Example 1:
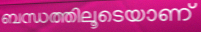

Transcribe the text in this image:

ബന്ധത്തിലൂടെയാണ്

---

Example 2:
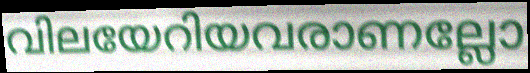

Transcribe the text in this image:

വിലയേറിയവരാണല്ലോ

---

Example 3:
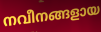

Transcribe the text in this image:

നവീനങ്ങളായ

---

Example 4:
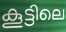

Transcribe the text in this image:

കൂട്ടിലെ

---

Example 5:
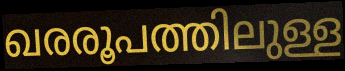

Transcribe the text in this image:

ഖരരൂപത്തിലുള്ള